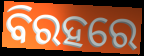
ବିରହରେ